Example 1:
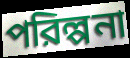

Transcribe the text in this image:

পরিল্পনা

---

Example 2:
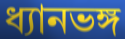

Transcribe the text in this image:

ধ্যানভঙ্গ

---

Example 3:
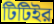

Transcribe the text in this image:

টিটিইর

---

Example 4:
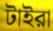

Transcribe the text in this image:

টাইরা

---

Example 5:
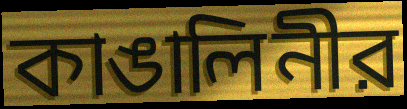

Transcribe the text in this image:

কাঙালিনীর